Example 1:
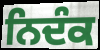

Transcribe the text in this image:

ਨਿਦੰਕ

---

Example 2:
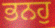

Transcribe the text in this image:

ਭਨਹੁ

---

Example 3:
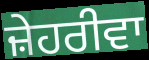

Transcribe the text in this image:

ਜ਼ੇਹਰੀਵਾ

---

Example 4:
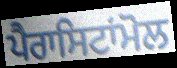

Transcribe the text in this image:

ਪੈਰਾਸਿਟਾਂਮੋਲ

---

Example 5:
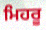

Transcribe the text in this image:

ਮਿਹਰੂ